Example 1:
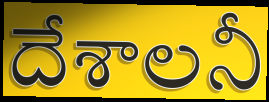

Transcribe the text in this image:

దేశాలనీ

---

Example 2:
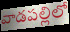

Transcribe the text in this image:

వాడపల్లిలో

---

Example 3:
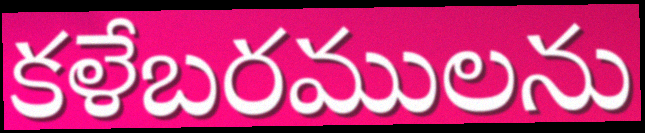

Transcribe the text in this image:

కళేబరములను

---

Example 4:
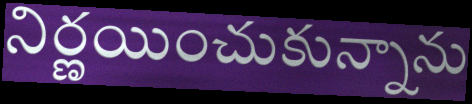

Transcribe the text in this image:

నిర్ణయించుకున్నాను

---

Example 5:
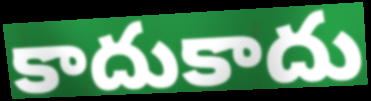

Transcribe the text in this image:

కాదుకాదు